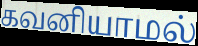
கவனியாமல்